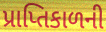
પ્રાપ્તિકાળની